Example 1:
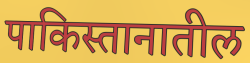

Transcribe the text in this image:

पाकिस्तानातील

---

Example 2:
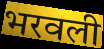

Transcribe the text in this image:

भरवली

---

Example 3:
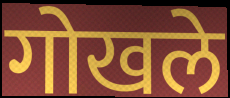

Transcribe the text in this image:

गोखले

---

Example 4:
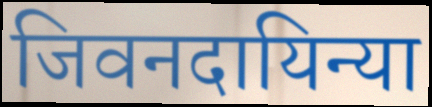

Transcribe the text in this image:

जिवनदायिन्या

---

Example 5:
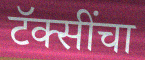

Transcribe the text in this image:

टॅक्सींचा